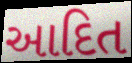
આદિત